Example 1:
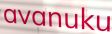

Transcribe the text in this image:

avanuku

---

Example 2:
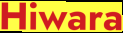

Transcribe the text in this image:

Hiwara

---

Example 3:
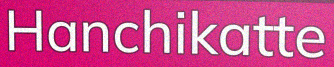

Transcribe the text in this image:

Hanchikatte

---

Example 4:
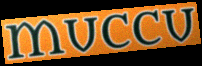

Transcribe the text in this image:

muccu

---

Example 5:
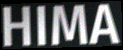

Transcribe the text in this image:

HIMA